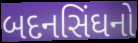
બદનસિંઘનો